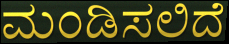
ಮಂಡಿಸಲಿದೆ